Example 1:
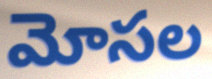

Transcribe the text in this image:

మోసల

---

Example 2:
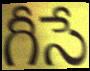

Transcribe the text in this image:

గీసే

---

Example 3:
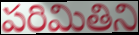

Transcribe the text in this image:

పరిమితిని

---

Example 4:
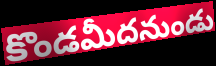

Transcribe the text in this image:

కొండమీదనుండు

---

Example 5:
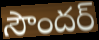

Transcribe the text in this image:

సౌందర్